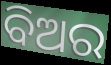
ବିଅର